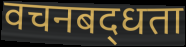
वचनबद्धता